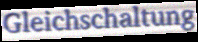
Gleichschaltung